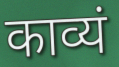
काव्यं